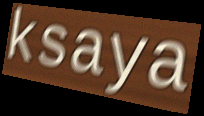
ksaya